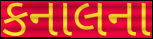
કનાલના